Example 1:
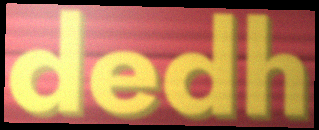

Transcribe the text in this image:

dedh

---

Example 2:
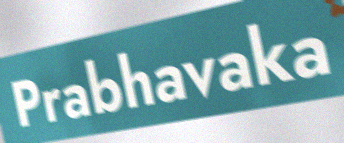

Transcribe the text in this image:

Prabhavaka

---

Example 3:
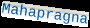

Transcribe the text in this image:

Mahapragna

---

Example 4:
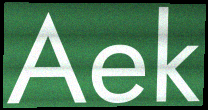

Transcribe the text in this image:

Aek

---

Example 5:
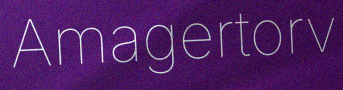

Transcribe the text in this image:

Amagertorv